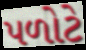
પળોટે